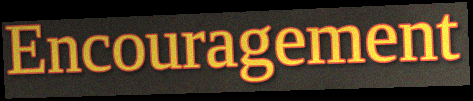
Encouragement